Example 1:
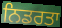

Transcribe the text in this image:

ਨਿਡਰਤਾ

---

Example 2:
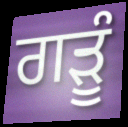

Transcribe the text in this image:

ਗੜੂੰ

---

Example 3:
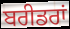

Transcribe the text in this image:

ਬਰੀਡਰਾਂ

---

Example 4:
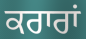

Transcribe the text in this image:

ਕਰਾਰਾਂ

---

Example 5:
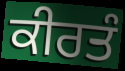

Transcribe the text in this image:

ਕੀਰਤੰ